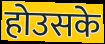
होउसके